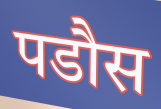
पडौस